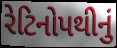
રેટિનોપથીનું